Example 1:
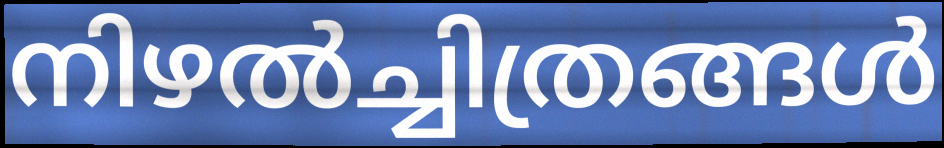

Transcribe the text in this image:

നിഴൽച്ചിത്രങ്ങൾ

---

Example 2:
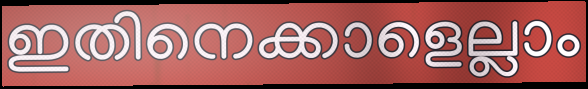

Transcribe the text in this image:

ഇതിനെക്കാളെല്ലാം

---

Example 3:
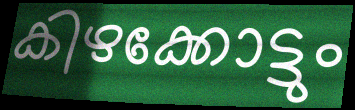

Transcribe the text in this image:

കിഴക്കോട്ടും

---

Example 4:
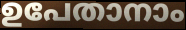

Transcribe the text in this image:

ഉപേതാനാം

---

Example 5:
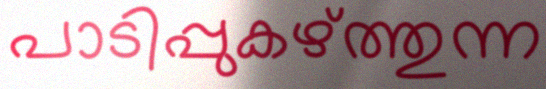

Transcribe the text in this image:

പാടിപ്പുകഴ്ത്തുന്ന